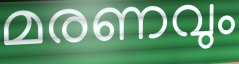
മരണവും